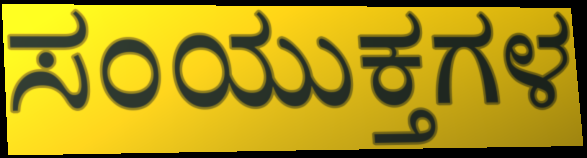
ಸಂಯುಕ್ತಗಳ